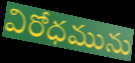
విరోధమును